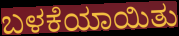
ಬಳಕೆಯಾಯಿತು